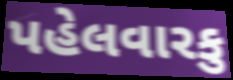
પહેલવારકુ